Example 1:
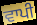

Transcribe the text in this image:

ਵਾਪੀ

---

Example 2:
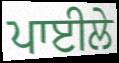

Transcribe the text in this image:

ਪਾਈਲੇ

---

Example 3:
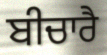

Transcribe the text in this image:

ਬੀਚਾਰੈ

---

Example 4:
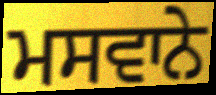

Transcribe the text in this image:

ਮਸਵਾਨੇ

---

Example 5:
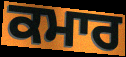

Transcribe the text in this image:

ਕਮਾਰ